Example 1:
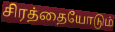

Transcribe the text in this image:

சிரத்தையோடும்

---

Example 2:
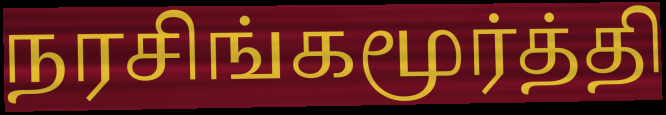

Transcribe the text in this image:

நரசிங்கமூர்த்தி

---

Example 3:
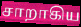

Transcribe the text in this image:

சாறாகிய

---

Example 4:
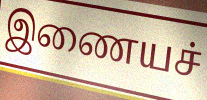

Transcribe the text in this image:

இணையச்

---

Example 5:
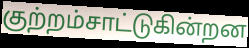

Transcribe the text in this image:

குற்றம்சாட்டுகின்றன